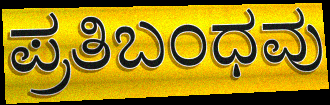
ಪ್ರತಿಬಂಧವು